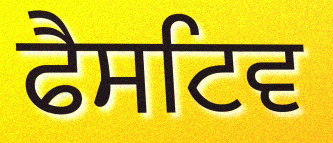
ਫੈਸਟਿਵ